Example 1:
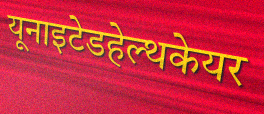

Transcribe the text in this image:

यूनाइटेडहेल्थकेयर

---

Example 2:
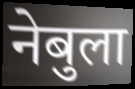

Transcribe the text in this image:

नेबुला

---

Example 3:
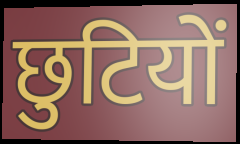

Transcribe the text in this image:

छुटियों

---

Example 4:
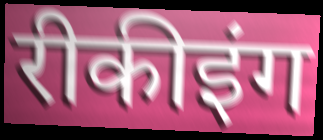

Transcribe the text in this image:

रीकीइंग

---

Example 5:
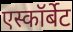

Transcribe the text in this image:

एस्कॉर्बेट